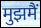
मुझमैं